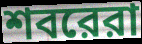
শবরেরা